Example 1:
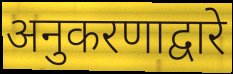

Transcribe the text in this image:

अनुकरणाद्वारे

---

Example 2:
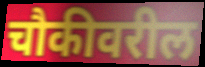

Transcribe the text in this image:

चौकीवरील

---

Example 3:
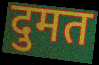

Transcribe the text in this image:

दुमत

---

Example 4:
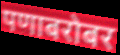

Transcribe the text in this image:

पणाबरोबर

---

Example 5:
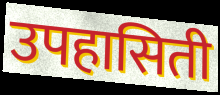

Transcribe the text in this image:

उपहासिती